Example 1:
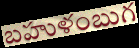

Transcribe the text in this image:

బహుళంబుగ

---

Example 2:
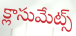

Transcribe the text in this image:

క్లాసుమేట్స్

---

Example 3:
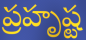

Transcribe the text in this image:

ప్రహృష్ట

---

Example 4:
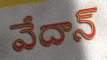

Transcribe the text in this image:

వేదాన్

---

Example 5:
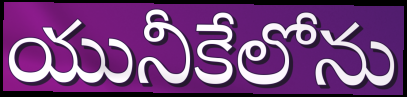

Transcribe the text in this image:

యునీకేలోను